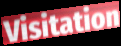
Visitation